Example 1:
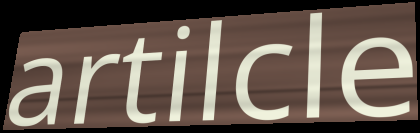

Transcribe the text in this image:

artilcle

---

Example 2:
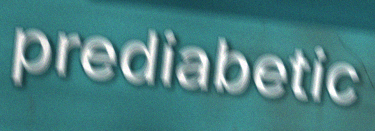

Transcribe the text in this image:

prediabetic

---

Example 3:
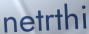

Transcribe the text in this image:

netrthi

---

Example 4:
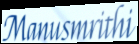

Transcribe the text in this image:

Manusmrithi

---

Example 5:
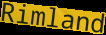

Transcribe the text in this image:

Rimland